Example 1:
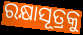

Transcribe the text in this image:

ରକ୍ଷାସୂତ୍ରକୁ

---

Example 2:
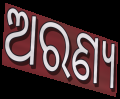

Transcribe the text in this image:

ଅରଣ୍ୟ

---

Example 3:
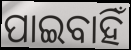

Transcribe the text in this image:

ପାଇବାହିଁ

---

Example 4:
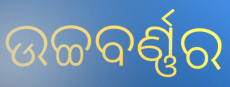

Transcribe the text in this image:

ଉଚ୍ଚବର୍ଣ୍ଣର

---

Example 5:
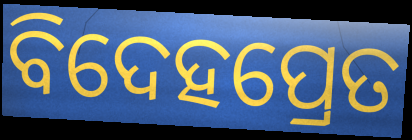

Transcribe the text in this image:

ବିଦେହପ୍ରେତ